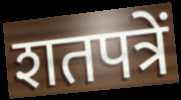
शतपत्रें